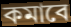
কমাবে